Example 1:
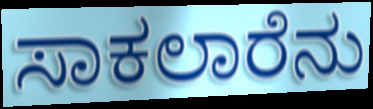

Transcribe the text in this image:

ಸಾಕಲಾರೆನು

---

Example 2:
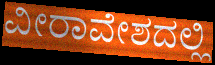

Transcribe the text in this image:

ವೀರಾವೇಶದಲ್ಲಿ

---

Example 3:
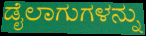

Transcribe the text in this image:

ಡೈಲಾಗುಗಳನ್ನು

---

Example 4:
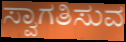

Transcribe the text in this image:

ಸ್ವಾಗತಿಸುವ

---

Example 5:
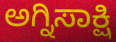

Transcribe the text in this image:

ಅಗ್ನಿಸಾಕ್ಷಿ